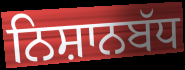
ਨਿਸ਼ਾਨਬੱਧ